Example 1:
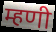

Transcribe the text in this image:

म्हणी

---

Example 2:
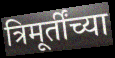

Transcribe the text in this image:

त्रिमूर्तींच्या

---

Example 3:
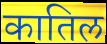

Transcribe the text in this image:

कातिल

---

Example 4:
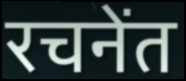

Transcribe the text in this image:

रचनेंत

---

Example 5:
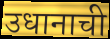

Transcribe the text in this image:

उधानाची